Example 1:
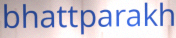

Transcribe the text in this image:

bhattparakh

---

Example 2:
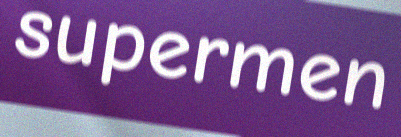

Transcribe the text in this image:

supermen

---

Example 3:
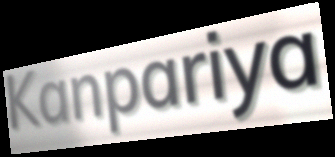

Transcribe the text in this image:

Kanpariya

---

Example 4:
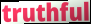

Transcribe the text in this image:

truthful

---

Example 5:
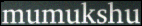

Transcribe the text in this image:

mumukshu